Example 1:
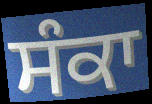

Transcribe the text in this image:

ਸੰਕਾ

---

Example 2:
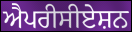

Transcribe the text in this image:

ਐਪਰੀਸੀਏਸ਼ਨ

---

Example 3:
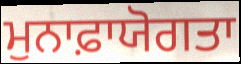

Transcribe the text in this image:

ਮੁਨਾਫ਼ਾਯੋਗਤਾ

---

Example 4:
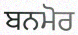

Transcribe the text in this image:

ਬਨਮੋਰ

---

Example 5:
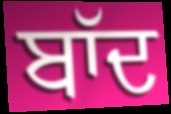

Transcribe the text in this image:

ਬਾੱਦ